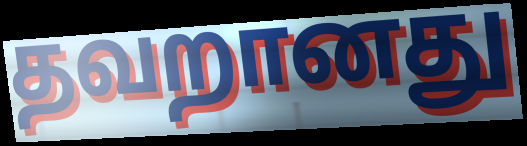
தவறானது